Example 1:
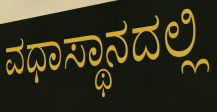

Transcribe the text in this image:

ವಧಾಸ್ಥಾನದಲ್ಲಿ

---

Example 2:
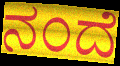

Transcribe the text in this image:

ನಂದೆ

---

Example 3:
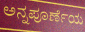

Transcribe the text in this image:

ಅನ್ನಪೂರ್ಣೆಯ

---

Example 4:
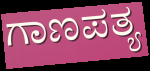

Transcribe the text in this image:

ಗಾಣಪತ್ಯ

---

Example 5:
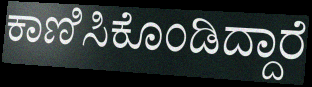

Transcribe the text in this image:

ಕಾಣಿಸಿಕೊಂಡಿದ್ದಾರೆ